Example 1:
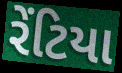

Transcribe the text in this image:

રેંટિયા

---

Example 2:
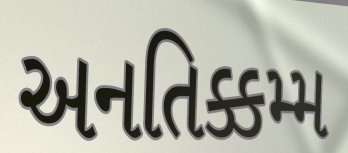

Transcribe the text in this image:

અનતિક્કમ્મ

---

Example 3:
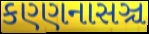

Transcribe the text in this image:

કણ્ણનાસઞ્ચ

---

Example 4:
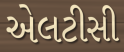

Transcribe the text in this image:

એલટીસી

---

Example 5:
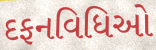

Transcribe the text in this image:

દફનવિધિઓ